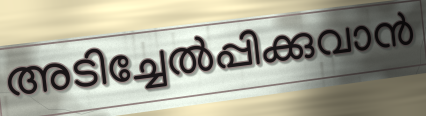
അടിച്ചേൽപ്പിക്കുവാൻ